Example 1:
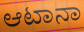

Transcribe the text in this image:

ಆಟಾನಾ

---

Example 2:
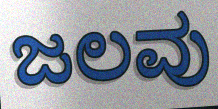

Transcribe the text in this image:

ಜಲವು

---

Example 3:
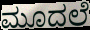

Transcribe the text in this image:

ಮೂದಲೆ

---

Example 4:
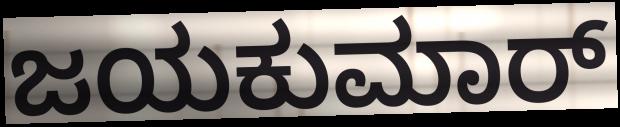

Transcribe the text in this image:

ಜಯಕುಮಾರ್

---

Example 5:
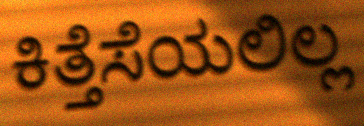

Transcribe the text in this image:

ಕಿತ್ತೆಸೆಯಲಿಲ್ಲ